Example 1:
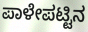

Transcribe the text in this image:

ಪಾಳೇಪಟ್ಟಿನ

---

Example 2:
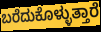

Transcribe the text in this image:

ಬರೆದುಕೊಳ್ಳುತ್ತಾರೆ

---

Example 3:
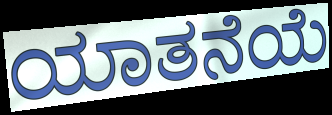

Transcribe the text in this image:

ಯಾತನೆಯೆ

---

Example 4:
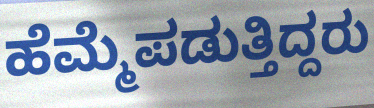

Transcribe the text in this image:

ಹೆಮ್ಮೆಪಡುತ್ತಿದ್ದರು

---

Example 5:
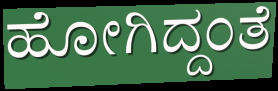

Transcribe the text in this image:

ಹೋಗಿದ್ದಂತೆ